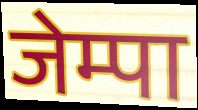
जेम्पा